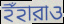
ইঁহারাও